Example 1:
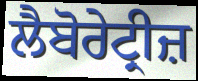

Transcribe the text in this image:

ਲੈਬੋਰੇਟ੍ਰੀਜ਼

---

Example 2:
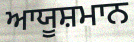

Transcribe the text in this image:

ਆਯੂਸ਼ਮਾਨ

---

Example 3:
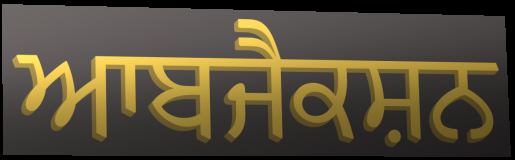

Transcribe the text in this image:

ਆਬਜੈਕਸ਼ਨ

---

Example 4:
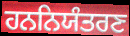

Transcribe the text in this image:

ਹਨਨਿਯੰਤਰਣ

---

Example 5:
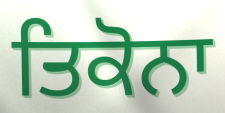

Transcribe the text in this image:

ਤਿਕੋਨਾ